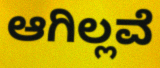
ಆಗಿಲ್ಲವೆ